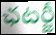
ఛటర్జీ